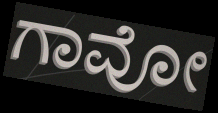
ಗಾವೋ